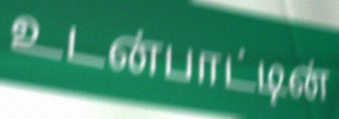
உடன்பாட்டின்